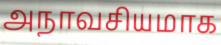
அநாவசியமாக